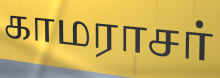
காமராசர்